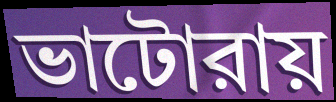
ভাটোরায়